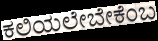
ಕಲಿಯಲೇಬೇಕೆಂಬ